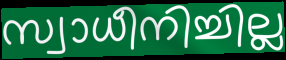
സ്വാധീനിച്ചില്ല